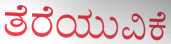
ತೆರೆಯುವಿಕೆ